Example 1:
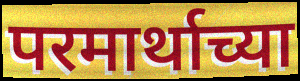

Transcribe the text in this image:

परमार्थाच्या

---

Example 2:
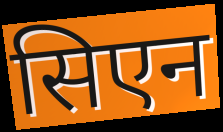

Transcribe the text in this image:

सिएन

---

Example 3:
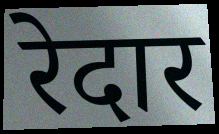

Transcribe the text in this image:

रेदार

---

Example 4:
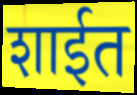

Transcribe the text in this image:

शाईत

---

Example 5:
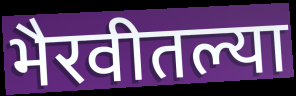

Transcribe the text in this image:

भैरवीतल्या